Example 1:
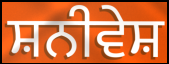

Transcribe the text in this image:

ਸ਼ਨੀਵੇਸ਼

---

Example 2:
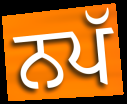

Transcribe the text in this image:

ਨਪੱ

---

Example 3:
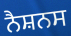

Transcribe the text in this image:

ਨੈਸ਼ਨਸ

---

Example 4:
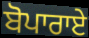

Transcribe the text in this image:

ਬੋਪਾਰਾਏ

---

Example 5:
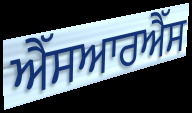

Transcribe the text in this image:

ਐੱਸਆਰਐੱਸ